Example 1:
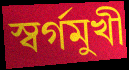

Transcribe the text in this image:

স্বর্গমুখী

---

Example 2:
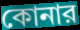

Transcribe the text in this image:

কোনার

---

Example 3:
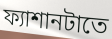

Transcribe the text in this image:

ফ্যাশানটাতে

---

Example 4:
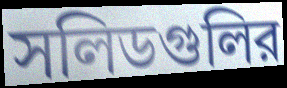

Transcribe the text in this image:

সলিডগুলির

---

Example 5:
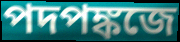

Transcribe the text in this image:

পদপঙ্কজে